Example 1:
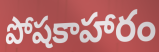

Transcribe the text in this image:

పోషకాహారం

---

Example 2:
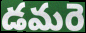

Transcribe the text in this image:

డమరె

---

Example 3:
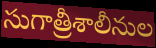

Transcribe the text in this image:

సుగాత్రీశాలీనుల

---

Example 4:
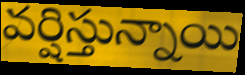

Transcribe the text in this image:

వర్షిస్తున్నాయి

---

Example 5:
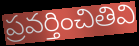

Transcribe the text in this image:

ప్రవర్తించితివి